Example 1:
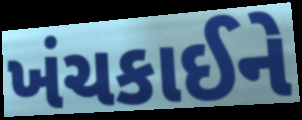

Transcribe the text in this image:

ખંચકાઈને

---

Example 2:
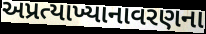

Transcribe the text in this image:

અપ્રત્યાખ્યાનાવરણના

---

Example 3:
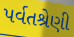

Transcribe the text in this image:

પર્વતશ્રેણી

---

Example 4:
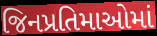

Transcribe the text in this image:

જિનપ્રતિમાઓમાં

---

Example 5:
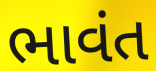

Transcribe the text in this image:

ભાવંત